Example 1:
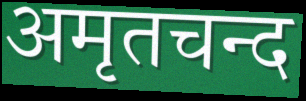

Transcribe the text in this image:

अमृतचन्द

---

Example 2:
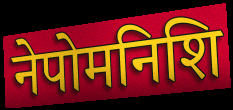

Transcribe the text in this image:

नेपोमनिशि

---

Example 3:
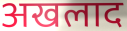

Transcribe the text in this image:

अखलाद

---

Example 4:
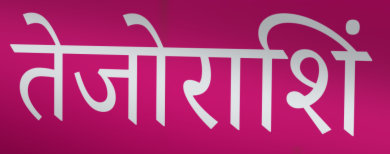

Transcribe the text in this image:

तेजोराशिं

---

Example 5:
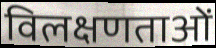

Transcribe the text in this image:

विलक्षणताओं